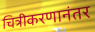
चित्रीकरणानंतर